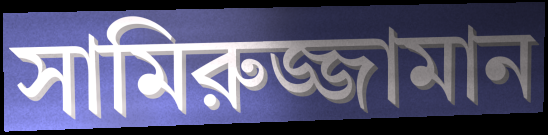
সামিরুজ্জামান